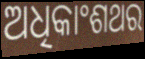
ଅଧିକାଂଶଥର